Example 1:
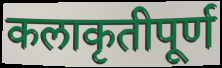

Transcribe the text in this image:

कलाकृतीपूर्ण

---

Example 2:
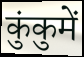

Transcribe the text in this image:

कुंकुमें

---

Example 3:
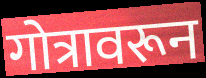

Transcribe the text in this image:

गोत्रावरून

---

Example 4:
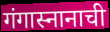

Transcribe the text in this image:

गंगास्नानाची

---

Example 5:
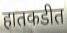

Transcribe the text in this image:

हातकडीत